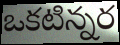
ఒకటిన్నర